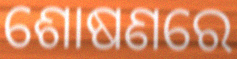
ଶୋଷଣରେ